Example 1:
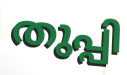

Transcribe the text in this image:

തുപ്പി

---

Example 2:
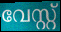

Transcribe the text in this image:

വേസ്റ്റ്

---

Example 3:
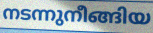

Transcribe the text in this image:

നടന്നുനീങ്ങിയ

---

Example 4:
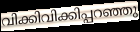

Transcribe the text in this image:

വിക്കിവിക്കിപ്പറഞ്ഞു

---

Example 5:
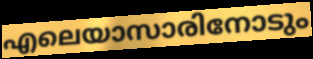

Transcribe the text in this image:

എലെയാസാരിനോടും